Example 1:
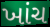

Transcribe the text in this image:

ખાંચ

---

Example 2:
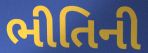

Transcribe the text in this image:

ભીતિની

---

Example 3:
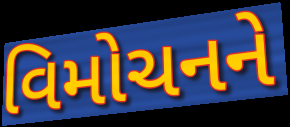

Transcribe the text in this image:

વિમોચનને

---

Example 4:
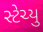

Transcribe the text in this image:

સ્ટેચ્યુ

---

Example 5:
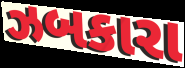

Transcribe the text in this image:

ઝબકારા